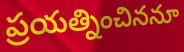
ప్రయత్నించిననూ